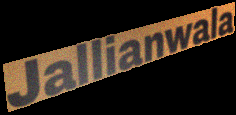
Jallianwala